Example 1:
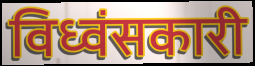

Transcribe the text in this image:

विध्वंसकारी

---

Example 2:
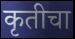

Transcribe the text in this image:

कृतीचा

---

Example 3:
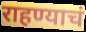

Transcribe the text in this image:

राहण्याचं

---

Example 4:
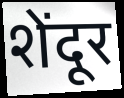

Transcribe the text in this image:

शेंदूर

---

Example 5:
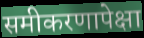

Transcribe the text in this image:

समीकरणापेक्षा